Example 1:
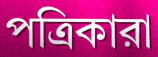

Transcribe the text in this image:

পত্রিকারা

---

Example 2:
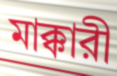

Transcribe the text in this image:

মাক্কারী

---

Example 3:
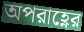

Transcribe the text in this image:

অপরাহ্ণের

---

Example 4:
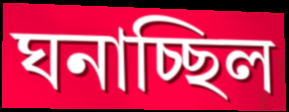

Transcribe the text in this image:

ঘনাচ্ছিল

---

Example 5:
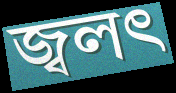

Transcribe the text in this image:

জ্বলৎ